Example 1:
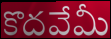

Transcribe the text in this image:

కొదవేమీ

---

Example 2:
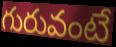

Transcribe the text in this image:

గురువంటే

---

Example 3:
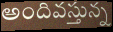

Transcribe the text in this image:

అందివస్తున్న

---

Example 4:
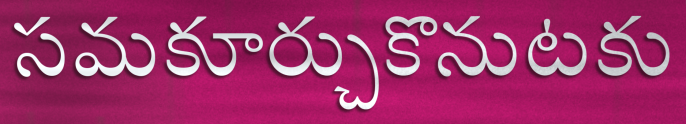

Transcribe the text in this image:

సమకూర్చుకొనుటకు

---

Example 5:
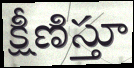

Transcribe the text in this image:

క్షీణిస్తూ